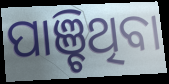
ପାଞ୍ଚିଥିବା